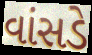
વાંસડે